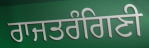
ਰਾਜਤਰੰਗਿਣੀ